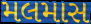
મલમાસ